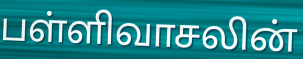
பள்ளிவாசலின்